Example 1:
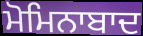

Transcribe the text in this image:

ਮੋਮਿਨਾਬਾਦ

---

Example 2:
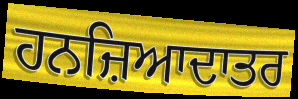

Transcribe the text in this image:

ਹਨਜ਼ਿਆਦਾਤਰ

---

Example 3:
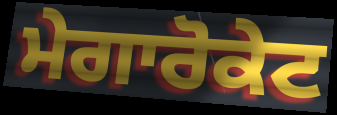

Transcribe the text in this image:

ਮੇਗਾਰੋਕੇਟ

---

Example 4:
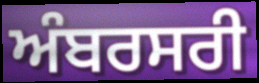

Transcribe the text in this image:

ਅੰਬਰਸਰੀ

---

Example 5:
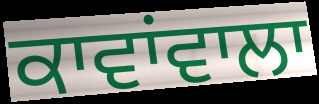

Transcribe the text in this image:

ਕਾਵਾਂਵਾਲਾ